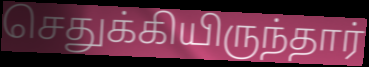
செதுக்கியிருந்தார்